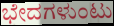
ಭೇದಗಳುಂಟು